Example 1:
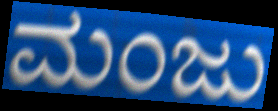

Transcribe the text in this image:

ಮಂಜು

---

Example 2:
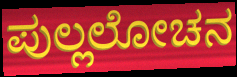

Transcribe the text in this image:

ಪುಲ್ಲಲೋಚನ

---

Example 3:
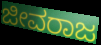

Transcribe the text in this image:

ಜೀವರಾಜ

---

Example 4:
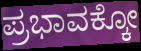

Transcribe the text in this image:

ಪ್ರಭಾವಕ್ಕೋ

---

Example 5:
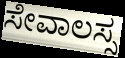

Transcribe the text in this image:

ಸೇವಾಲಸ್ಸ